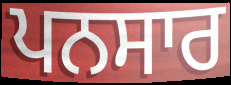
ਪਨਸਾਰ